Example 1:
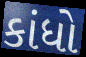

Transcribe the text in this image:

કાંધો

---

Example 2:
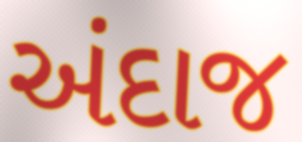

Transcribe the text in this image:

અંદાજ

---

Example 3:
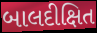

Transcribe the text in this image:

બાલદીક્ષિત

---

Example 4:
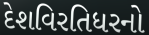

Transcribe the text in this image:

દેશવિરતિધરનો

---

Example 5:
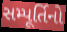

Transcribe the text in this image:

સમ્પૂર્તિનો